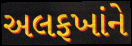
અલફખાંને